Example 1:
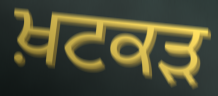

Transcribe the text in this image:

ਖ਼ਟਕੜ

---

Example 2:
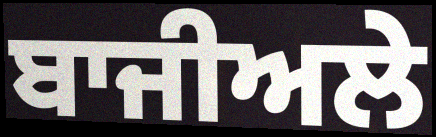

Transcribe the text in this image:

ਬਾਜੀਅਲੇ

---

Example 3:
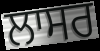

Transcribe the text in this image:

ਲਾਸਰ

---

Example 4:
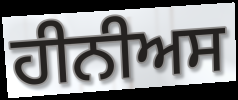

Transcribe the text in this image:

ਹੀਨੀਅਸ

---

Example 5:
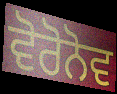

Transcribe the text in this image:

ਵੋਰੋਨੋਵ